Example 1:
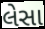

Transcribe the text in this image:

લેસા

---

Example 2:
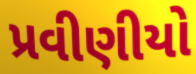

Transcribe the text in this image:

પ્રવીણીયો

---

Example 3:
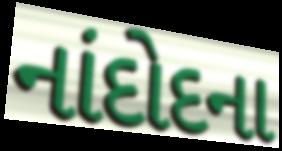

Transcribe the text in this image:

નાંદોદના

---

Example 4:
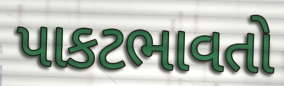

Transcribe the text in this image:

પાકટભાવતો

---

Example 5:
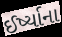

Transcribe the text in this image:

ઈર્ષ્યાના